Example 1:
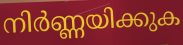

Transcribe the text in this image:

നിർണ്ണയിക്കുക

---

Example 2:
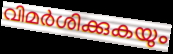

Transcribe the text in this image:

വിമർശിക്കുകയും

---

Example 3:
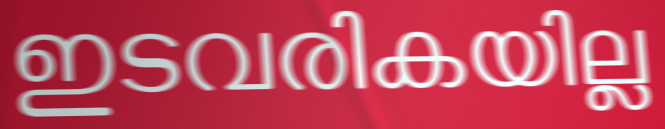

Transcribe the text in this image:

ഇടവരികയില്ല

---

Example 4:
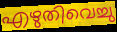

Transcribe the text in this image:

എഴുതിവെച്ചു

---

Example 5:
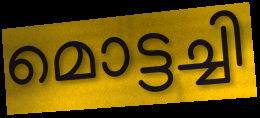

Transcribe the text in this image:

മൊട്ടച്ചി